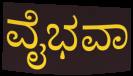
ವೈಭವಾ